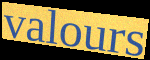
valours